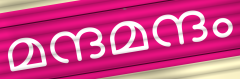
മന്ദമന്ദം